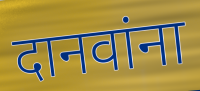
दानवांना